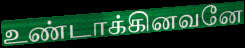
உண்டாக்கினவனே